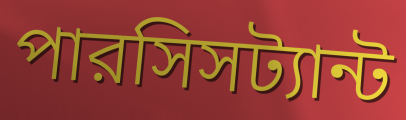
পারসিসট্যান্ট